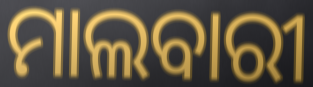
ମାଲବାରୀ